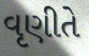
વૃણીતે